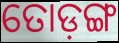
ତୋଡ଼ଙ୍ଗ